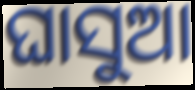
ଘାସୁଆ